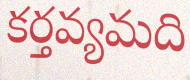
కర్తవ్యమది